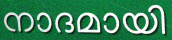
നാദമായി